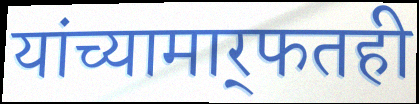
यांच्यामार्फतही